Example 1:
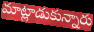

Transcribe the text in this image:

మాట్లాడుకున్నారు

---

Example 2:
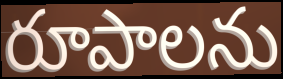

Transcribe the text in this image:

రూపాలను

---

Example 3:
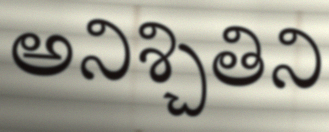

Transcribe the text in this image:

అనిశ్చితిని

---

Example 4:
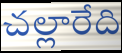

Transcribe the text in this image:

చల్లారేది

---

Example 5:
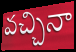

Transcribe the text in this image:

వచ్చినా